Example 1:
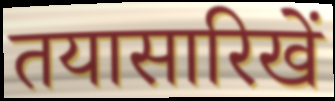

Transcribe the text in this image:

तयासारिखें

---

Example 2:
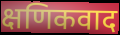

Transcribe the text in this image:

क्षणिकवाद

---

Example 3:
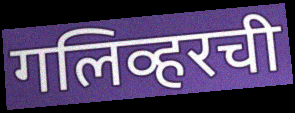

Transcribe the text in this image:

गलिव्हरची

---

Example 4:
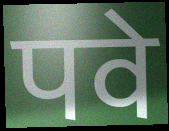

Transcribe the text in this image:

पवे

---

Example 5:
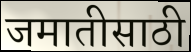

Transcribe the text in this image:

जमातीसाठी